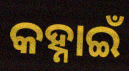
କହ୍ନାଇଁ